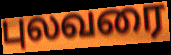
புலவரை